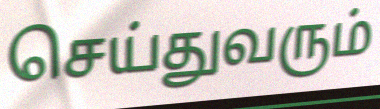
செய்துவரும்